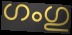
ഗംഗു